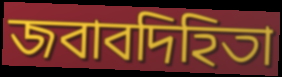
জবাবদিহিতা